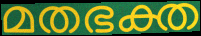
മതഭക്ത